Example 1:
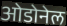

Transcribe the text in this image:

ओडोनेल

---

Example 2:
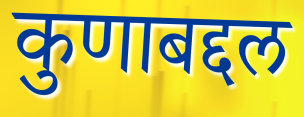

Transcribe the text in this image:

कुणाबद्दल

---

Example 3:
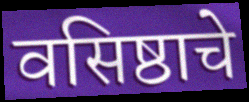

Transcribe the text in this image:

वसिष्ठाचे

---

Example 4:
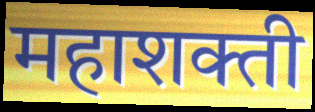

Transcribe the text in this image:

महाशक्‍ती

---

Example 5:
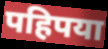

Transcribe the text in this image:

पहिपया